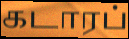
கடாரப்